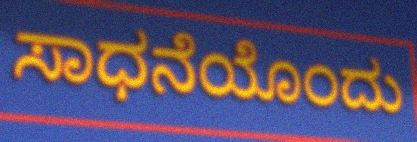
ಸಾಧನೆಯೊಂದು